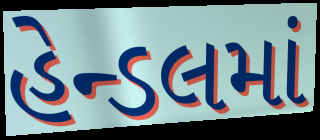
હેન્ડલમાં